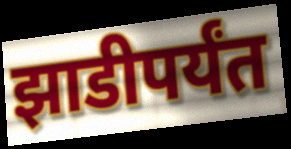
झाडीपर्यंत